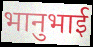
भानुभाई